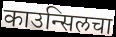
काउन्सिलचा